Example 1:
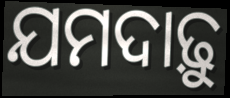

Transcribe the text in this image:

ଯମଦାଢ଼ୁ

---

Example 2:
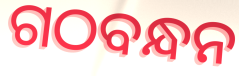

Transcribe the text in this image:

ଗଠବନ୍ଧନ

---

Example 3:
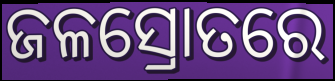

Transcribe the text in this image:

ଜଳସ୍ରୋତରେ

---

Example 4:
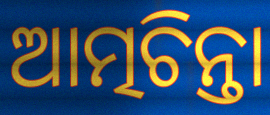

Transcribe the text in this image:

ଆତ୍ମଚିନ୍ତା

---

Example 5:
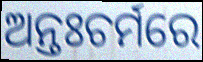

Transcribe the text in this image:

ଅନ୍ତଃଚର୍ମରେ